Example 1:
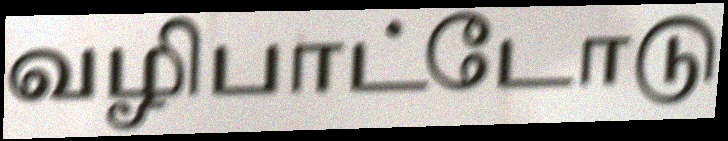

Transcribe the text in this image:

வழிபாட்டோடு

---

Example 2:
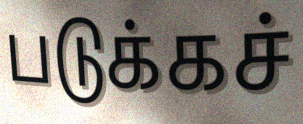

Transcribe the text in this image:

படுக்கச்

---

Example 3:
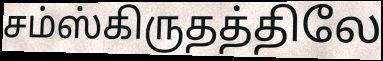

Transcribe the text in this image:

சம்ஸ்கிருதத்திலே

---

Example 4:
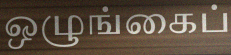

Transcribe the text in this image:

ஒழுங்கைப்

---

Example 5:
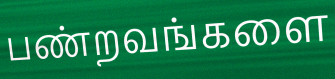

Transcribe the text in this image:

பண்றவங்களை